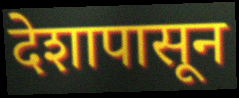
देशापासून